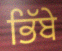
ਭਿੱਬੇ